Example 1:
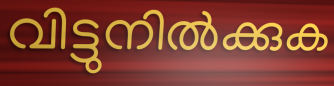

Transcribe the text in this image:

വിട്ടുനിൽക്കുക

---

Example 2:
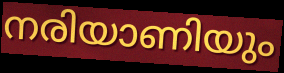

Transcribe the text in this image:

നരിയാണിയും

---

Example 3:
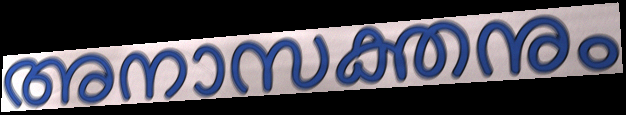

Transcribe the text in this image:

അനാസക്തനും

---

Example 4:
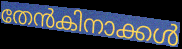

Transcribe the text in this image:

തേൻകിനാക്കൾ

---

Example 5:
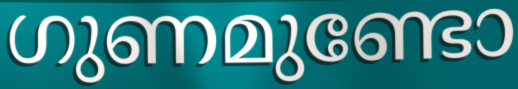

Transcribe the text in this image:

ഗുണമുണ്ടോ